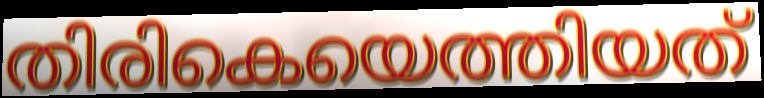
തിരികെയെത്തിയത്